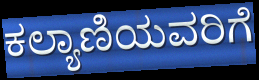
ಕಲ್ಯಾಣಿಯವರಿಗೆ